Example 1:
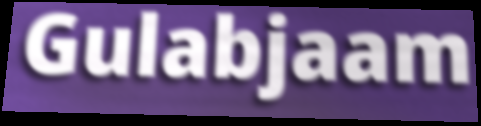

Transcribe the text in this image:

Gulabjaam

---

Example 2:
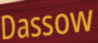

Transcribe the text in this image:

Dassow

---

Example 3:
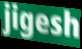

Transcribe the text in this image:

jigesh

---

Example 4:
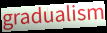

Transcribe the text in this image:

gradualism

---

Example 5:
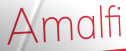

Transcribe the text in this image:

Amalfi